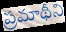
ప్రమాథీని